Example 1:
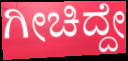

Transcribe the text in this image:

ಗೀಚಿದ್ದೇ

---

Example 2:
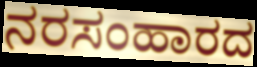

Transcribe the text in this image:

ನರಸಂಹಾರದ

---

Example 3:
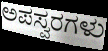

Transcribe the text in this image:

ಅಪಸ್ವರಗಳು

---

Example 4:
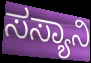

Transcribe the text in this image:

ಸಸ್ಯಾನಿ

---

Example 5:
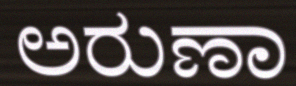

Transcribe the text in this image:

ಅರುಣಾ